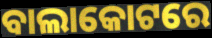
ବାଲାକୋଟରେ